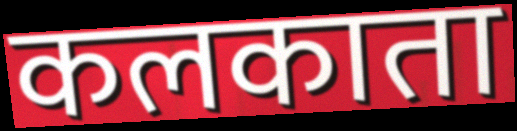
कलकाता